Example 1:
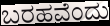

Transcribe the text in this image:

ಬರಹವೆಂದು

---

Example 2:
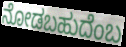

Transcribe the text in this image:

ನೋಡಬಹುದೆಂಬ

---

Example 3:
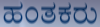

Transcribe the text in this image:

ಹಂತಕರು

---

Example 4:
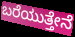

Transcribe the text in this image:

ಬರೆಯುತ್ತೇನೆ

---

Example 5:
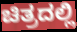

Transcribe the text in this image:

ಚಿತ್ರದಲ್ಲಿ